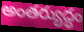
అంతర్యుద్ధం